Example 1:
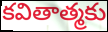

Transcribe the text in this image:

కవితాత్మకు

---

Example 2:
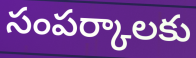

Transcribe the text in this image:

సంపర్కాలకు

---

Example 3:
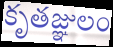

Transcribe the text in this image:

కృతజ్ఞులం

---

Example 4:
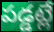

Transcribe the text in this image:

పడ్డట్లే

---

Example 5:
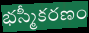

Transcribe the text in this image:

భస్మీకరణం